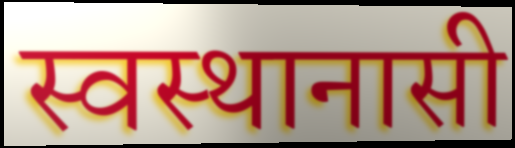
स्वस्थानासी